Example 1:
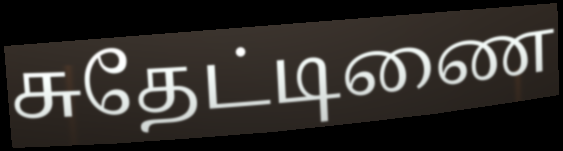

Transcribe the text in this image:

சுதேட்டிணை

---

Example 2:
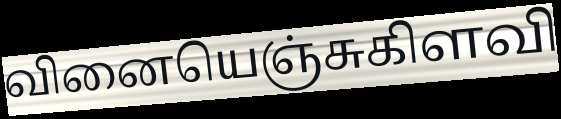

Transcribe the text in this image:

வினையெஞ்சுகிளவி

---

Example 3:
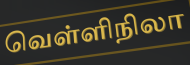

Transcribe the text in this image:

வெள்ளிநிலா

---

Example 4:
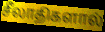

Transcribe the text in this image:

சீலாதிகளால்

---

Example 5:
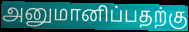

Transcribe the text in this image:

அனுமானிப்பதற்கு